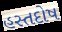
હસ્તદોષ